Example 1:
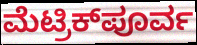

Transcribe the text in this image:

ಮೆಟ್ರಿಕ್‌ಪೂರ್ವ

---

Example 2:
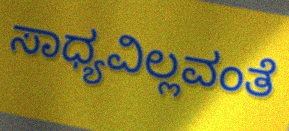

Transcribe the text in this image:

ಸಾಧ್ಯವಿಲ್ಲವಂತೆ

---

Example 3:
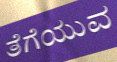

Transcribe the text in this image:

ತೆಗೆಯುವ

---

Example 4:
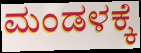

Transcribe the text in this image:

ಮಂಡಳಕ್ಕೆ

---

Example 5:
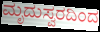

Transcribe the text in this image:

ಮೃದುಸ್ವರದಿಂದ